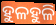
ହୁଳହୁଳି